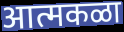
आत्मकळा